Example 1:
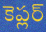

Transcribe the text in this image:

కెప్లర్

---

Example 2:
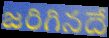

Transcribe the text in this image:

జరిగినదే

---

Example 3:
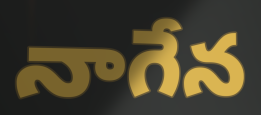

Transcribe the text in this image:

నాగేన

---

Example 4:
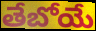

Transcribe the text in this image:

తేబోయే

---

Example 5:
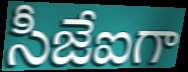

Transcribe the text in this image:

సీజేఐగా